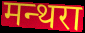
मन्थरा